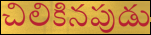
చిలికినపుడు